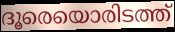
ദൂരെയൊരിടത്ത്